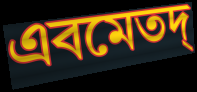
এবমেতদ্